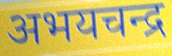
अभयचन्द्र